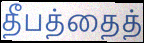
தீபத்தைத்